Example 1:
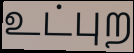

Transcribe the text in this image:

உட்புற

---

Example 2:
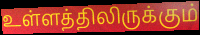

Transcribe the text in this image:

உள்ளத்திலிருக்கும்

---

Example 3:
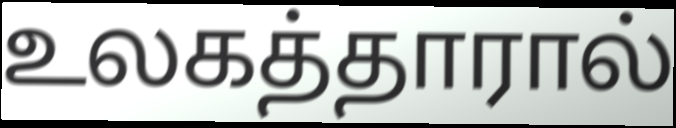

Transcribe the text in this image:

உலகத்தாரால்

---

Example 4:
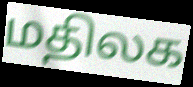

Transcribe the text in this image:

மதிலக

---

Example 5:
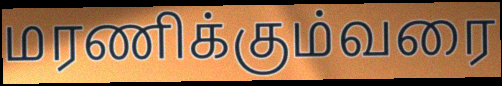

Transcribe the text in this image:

மரணிக்கும்வரை